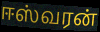
ஈஸ்வரன்